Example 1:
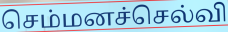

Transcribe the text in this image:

செம்மனச்செல்வி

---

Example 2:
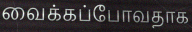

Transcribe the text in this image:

வைக்கப்போவதாக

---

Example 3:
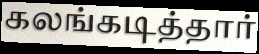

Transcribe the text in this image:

கலங்கடித்தார்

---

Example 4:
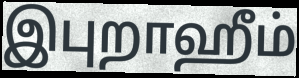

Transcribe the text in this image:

இபுறாஹீம்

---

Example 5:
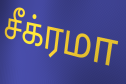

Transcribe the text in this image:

சீக்ரமா